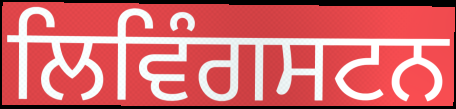
ਲਿਵਿੰਗਸਟਨ